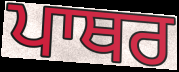
ਪਾਥਰ